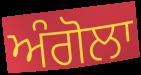
ਅੰਗੋਲਾ